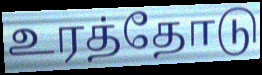
உரத்தோடு